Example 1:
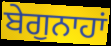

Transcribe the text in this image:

ਬੇਗੁਨਾਹਾਂ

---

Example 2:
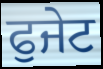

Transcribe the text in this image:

ਫੁਜੇਟ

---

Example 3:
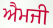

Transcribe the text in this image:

ਐਮਜੀ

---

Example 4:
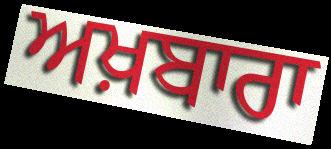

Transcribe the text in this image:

ਅਖ਼ਬਾਰਾ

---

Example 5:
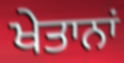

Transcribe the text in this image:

ਖੇਤਾਨਾਂ